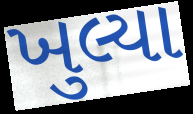
ખુલ્યા